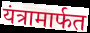
यंत्रामार्फत